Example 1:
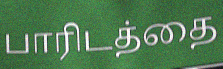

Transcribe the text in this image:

பாரிடத்தை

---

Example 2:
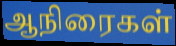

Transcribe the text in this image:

ஆநிரைகள்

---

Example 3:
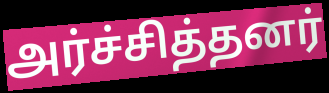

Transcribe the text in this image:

அர்ச்சித்தனர்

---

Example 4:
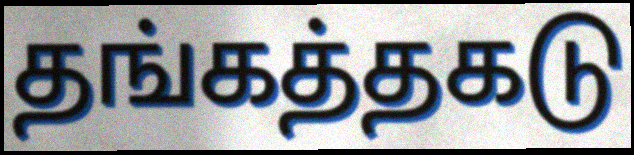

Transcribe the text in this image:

தங்கத்தகடு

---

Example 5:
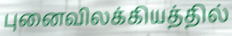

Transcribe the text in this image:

புனைவிலக்கியத்தில்